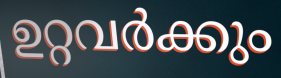
ഉറ്റവർക്കും